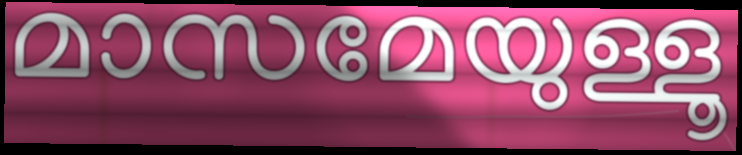
മാസമേയുള്ളൂ